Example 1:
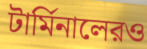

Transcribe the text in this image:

টার্মিনালেরও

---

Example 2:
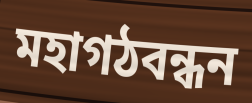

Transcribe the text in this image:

মহাগঠবন্ধন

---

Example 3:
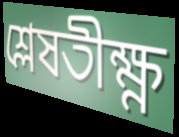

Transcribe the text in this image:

শ্লেষতীক্ষ্ণ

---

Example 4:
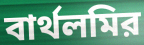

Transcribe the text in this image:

বার্থলমির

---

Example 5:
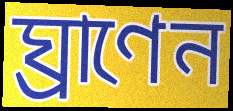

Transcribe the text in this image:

ঘ্রাণেন